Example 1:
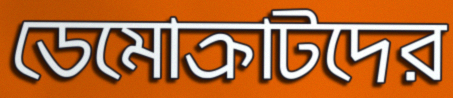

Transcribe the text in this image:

ডেমোক্রাটদের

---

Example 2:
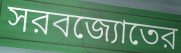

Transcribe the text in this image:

সরবজ্যোতের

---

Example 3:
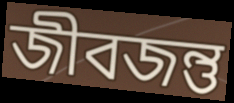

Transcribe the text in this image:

জীবজন্তু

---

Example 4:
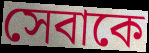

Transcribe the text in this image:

সেবাকে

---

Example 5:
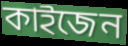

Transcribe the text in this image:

কাইজেন